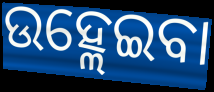
ଉହ୍ଲେଇବା